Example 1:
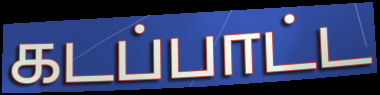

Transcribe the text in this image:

கடப்பாட்ட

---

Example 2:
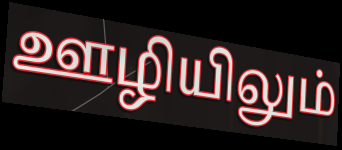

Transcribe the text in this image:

ஊழியிலும்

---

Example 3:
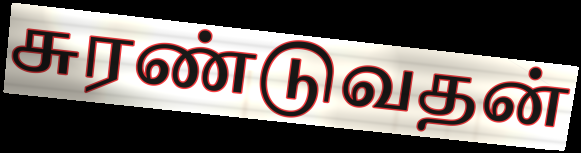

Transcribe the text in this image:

சுரண்டுவதன்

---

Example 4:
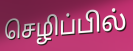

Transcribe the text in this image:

செழிப்பில்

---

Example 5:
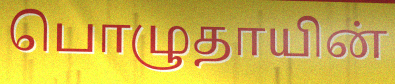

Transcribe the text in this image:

பொழுதாயின்